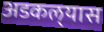
अडकल्यास